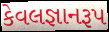
કેવલજ્ઞાનરૂપ